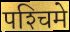
पश्चिमे